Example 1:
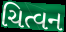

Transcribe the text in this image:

ચિત્વન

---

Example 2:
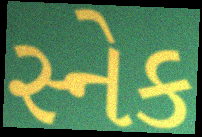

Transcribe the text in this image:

સ્નેક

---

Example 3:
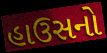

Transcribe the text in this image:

હાઉસનો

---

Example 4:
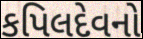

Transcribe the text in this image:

કપિલદેવનો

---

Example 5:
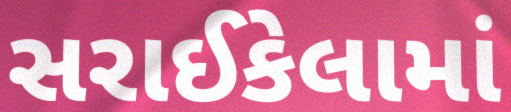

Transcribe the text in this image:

સરાઈકેલામાં